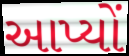
આપ્યોં